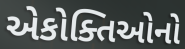
એકોક્તિઓનો